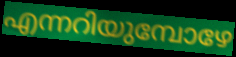
എന്നറിയുമ്പോഴേ